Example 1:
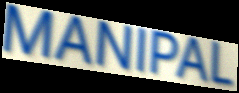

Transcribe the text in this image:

MANIPAL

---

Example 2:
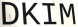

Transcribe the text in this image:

DKIM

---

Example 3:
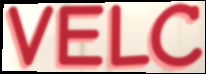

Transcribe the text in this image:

VELC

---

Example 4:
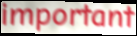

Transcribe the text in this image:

important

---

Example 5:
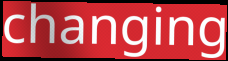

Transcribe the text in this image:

changing